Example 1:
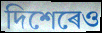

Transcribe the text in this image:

দিশেৰেও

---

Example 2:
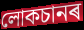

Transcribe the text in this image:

লোকচানৰ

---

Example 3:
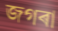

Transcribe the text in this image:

জগৰা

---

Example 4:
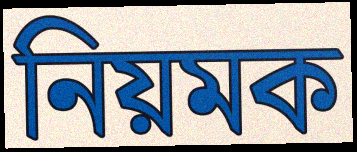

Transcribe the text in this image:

নিয়মক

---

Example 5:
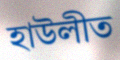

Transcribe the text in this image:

হাউলীত